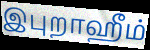
இபுறாஹீம்